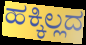
ಹಕ್ಕಿಲ್ಲದ